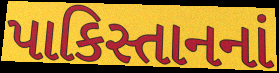
પાકિસ્તાનનાં